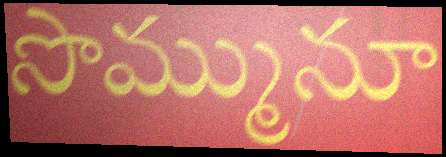
సొమ్మునూ